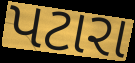
પટારા